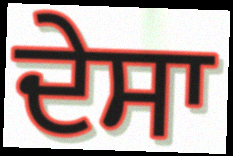
ਦੇਸਾ